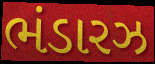
ભંડારઝ